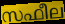
സഫീല